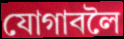
যোগাবলৈ